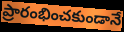
ప్రారంభించకుండానే